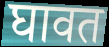
घावत